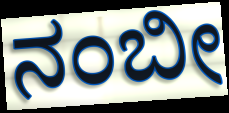
ನಂಬೀ